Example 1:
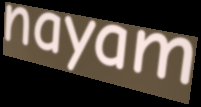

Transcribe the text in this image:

nayam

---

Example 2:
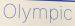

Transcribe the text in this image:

Olympic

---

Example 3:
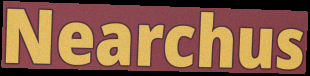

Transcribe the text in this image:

Nearchus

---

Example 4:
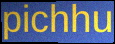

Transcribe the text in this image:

pichhu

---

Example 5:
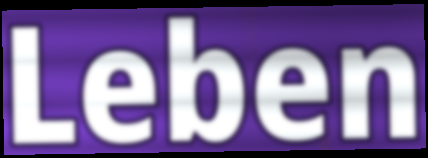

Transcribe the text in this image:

Leben